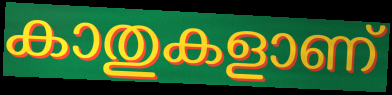
കാതുകളാണ്